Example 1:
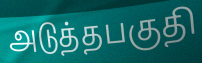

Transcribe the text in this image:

அடுத்தபகுதி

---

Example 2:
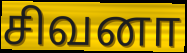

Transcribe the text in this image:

சிவனா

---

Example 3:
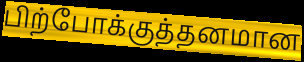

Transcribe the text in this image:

பிற்போக்குத்தனமான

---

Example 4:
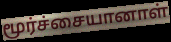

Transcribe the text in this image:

மூர்ச்சையானாள்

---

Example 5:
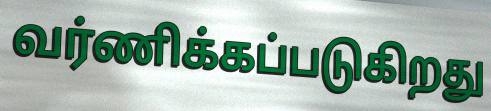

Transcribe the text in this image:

வர்ணிக்கப்படுகிறது